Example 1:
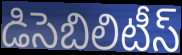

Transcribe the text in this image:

డిసెబిలిటీస్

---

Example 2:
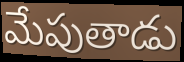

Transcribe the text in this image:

మేపుతాడు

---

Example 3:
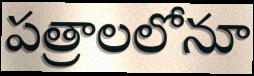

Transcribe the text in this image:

పత్రాలలోనూ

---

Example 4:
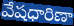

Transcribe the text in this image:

వేషధారిణా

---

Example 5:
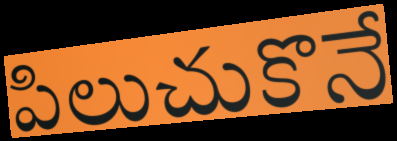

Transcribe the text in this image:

పిలుచుకొనే